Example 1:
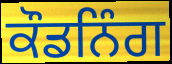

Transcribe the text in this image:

ਕੌਡਨਿੰਗ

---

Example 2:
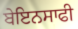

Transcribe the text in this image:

ਬੇਇਨਸਾਫੀ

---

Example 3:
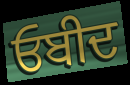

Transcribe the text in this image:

ਓਬੀਦ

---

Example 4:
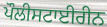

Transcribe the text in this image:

ਪੌਲੀਸਟਾਈਰੀਨ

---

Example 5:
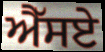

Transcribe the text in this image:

ਐੱਸਏ